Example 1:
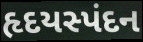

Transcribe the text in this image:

હૃદયસ્પંદન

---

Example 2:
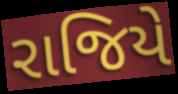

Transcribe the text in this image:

રાજિયે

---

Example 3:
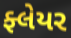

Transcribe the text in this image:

ફ્લેયર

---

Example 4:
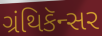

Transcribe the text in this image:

ગ્રંથિકૅન્સર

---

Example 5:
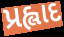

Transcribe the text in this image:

પ્રહ્લાદ